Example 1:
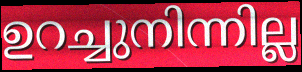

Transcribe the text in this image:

ഉറച്ചുനിന്നില്ല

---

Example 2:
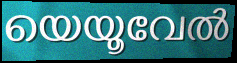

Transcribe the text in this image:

യെയൂവേൽ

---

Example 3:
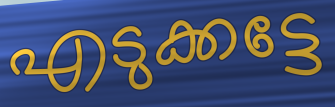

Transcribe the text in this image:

എടുക്കട്ടേ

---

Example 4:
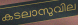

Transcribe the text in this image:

കടലാസുവില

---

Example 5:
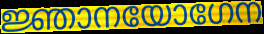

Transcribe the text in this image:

ജ്ഞാനയോഗേന